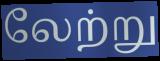
லேற்று